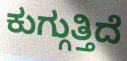
ಕುಗ್ಗುತ್ತಿದೆ